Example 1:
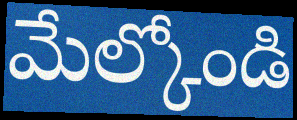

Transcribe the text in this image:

మేల్కోండి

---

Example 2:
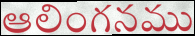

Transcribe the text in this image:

ఆలింగనము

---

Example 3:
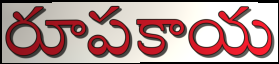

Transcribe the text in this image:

రూపకాయ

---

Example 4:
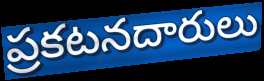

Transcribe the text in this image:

ప్రకటనదారులు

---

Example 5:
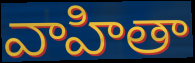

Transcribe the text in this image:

వాహితా